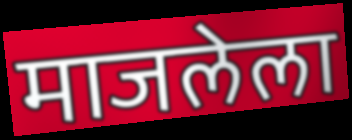
माजलेला